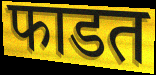
फाडत